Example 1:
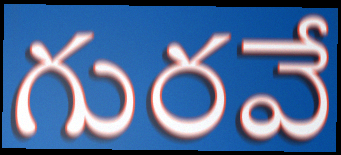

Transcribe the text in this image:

గురవే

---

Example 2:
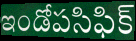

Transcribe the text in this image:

ఇండోపసిఫిక్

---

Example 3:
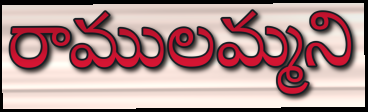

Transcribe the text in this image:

రాములమ్మని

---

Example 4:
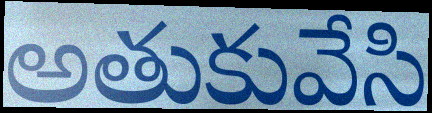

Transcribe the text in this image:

అతుకువేసి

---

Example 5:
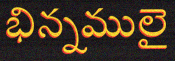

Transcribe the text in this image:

భిన్నములై